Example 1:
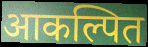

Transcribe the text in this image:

आकल्पित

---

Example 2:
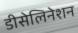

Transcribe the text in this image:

डीसेलिनेशन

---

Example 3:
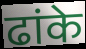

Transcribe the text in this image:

ढांके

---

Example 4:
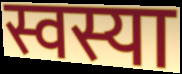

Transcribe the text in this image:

स्वस्या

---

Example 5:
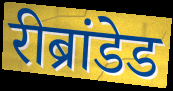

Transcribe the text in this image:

रीब्रांडेड